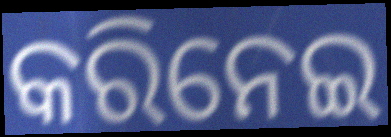
କରିନେଇ